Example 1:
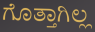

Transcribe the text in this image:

ಗೊತ್ತಾಗಿಲ್ಲ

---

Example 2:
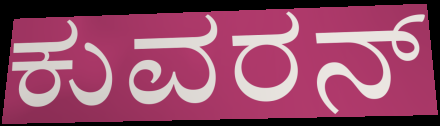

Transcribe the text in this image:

ಕುವರನ್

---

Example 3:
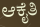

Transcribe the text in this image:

ಆಕೈತಿ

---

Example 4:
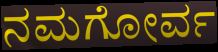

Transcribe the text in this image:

ನಮಗೋರ್ವ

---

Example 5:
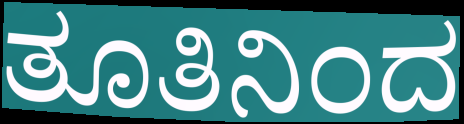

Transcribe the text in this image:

ತೂತಿನಿಂದ